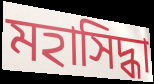
মহাসিদ্ধা